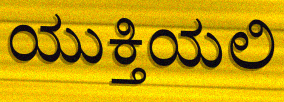
ಯುಕ್ತಿಯಲಿ